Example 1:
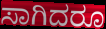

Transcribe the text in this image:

ಸಾಗಿದರೂ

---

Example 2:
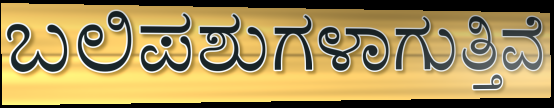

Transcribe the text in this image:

ಬಲಿಪಶುಗಳಾಗುತ್ತಿವೆ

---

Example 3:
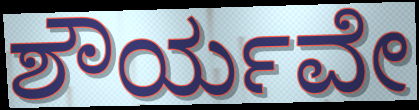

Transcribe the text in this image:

ಶೌರ್ಯವೇ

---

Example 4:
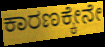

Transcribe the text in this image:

ಕಾರಣಕ್ಕೇನೇ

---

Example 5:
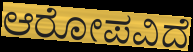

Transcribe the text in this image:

ಆರೋಪವಿದೆ